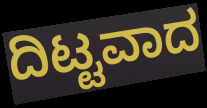
ದಿಟ್ಟವಾದ